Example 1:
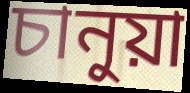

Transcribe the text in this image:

চানুয়া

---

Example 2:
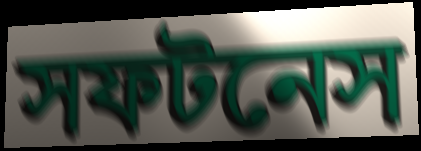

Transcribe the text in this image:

সফটনেস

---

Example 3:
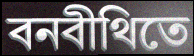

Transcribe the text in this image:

বনবীথিতে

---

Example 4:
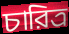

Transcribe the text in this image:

চারিত্র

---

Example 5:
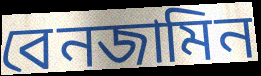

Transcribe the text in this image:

বেনজামিন